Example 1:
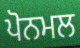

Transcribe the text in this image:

ਪੋਨਮਲ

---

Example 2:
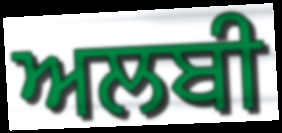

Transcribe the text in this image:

ਅਲਬੀ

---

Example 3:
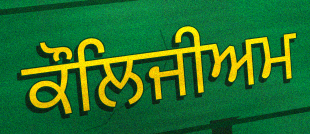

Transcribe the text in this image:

ਕੌਲਿਜੀਅਮ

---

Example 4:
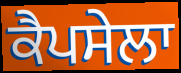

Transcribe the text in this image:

ਕੈਪਸੇਲਾ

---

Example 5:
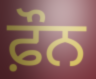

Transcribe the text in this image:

ਫ਼ੌਨ